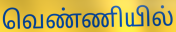
வெண்ணியில்